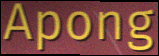
Apong